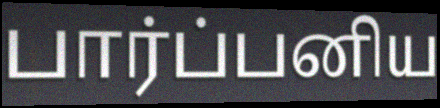
பார்ப்பனிய